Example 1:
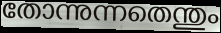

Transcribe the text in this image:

തോന്നുന്നതെന്തും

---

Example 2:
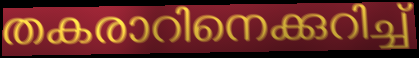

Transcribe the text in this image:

തകരാറിനെക്കുറിച്ച്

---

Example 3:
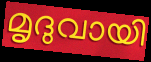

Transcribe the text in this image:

മൃദുവായി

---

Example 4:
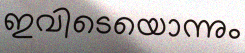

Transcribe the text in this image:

ഇവിടെയൊന്നും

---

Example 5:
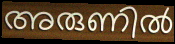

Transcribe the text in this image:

അരുണിൽ